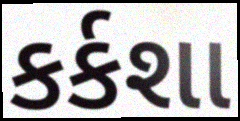
કર્કશા